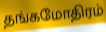
தங்கமோதிரம்